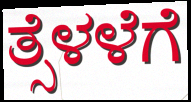
ತ್ಸೆಳಳೆಗೆ